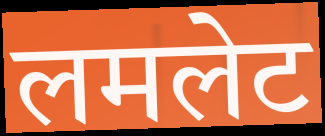
लमलेट